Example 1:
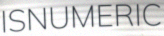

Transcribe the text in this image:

ISNUMERIC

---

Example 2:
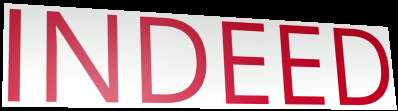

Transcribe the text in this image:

INDEED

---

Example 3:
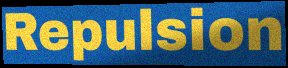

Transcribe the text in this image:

Repulsion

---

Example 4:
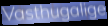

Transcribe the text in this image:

Vasthugalige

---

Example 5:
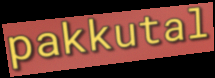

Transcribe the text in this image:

pakkutal